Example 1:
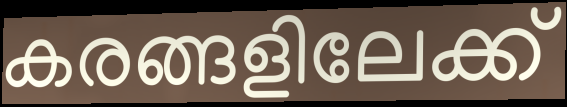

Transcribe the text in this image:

കരങ്ങളിലേക്ക്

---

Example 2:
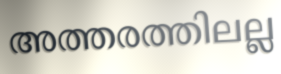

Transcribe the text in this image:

അത്തരത്തിലല്ല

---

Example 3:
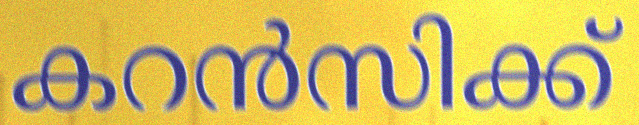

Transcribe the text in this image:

കറൻസിക്ക്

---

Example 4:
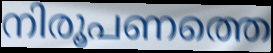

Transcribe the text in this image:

നിരൂപണത്തെ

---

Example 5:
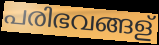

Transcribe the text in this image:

പരിഭവങ്ങള്